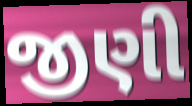
જીણી